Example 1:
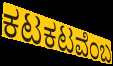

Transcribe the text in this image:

ಕಟಕಟವೆಂಬ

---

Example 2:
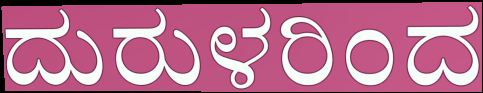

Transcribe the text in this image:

ದುರುಳರಿಂದ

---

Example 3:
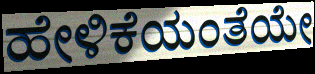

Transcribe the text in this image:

ಹೇಳಿಕೆಯಂತೆಯೇ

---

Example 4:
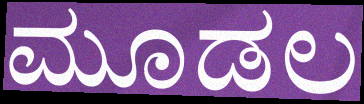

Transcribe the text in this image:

ಮೂಡಲ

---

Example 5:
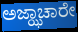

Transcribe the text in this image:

ಅಜ್ಝಾಚಾರೇ